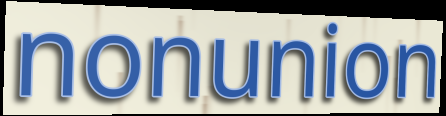
nonunion